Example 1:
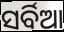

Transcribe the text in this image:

ସର୍ବିଆ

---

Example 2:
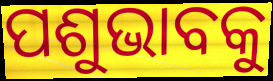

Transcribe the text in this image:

ପଶୁଭାବକୁ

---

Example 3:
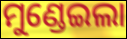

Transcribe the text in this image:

ମୁଣ୍ଡେଇଲା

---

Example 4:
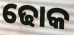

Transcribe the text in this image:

ଢୋକ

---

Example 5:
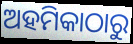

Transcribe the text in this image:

ଅହମିକାଠାରୁ